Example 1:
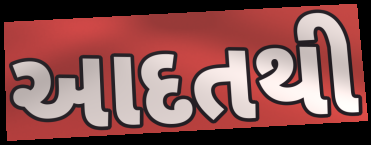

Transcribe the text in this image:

આદતથી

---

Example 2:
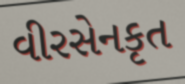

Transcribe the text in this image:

વીરસેનકૃત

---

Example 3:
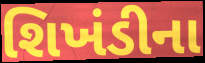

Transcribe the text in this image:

શિખંડીના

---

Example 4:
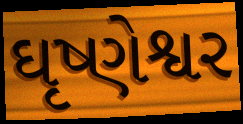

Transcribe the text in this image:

ઘૃષ્ણેશ્વર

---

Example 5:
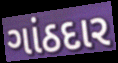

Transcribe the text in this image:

ગાંઠદાર